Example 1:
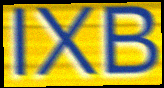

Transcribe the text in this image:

IXB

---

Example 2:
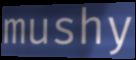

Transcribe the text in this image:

mushy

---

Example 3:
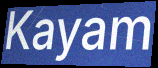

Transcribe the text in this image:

Kayam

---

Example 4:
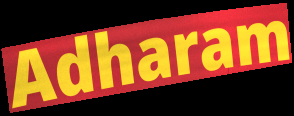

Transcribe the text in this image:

Adharam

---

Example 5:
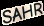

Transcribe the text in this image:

SAHR